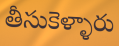
తీసుకెళ్ళారు